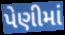
પેણીમાં